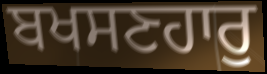
ਬਖਸਣਹਾਰੁ